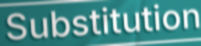
Substitution